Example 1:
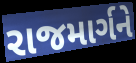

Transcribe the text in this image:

રાજમાર્ગને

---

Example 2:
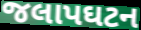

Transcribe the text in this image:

જલાપઘટન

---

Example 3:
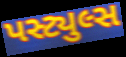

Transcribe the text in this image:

પસ્ટ્યુલ્સ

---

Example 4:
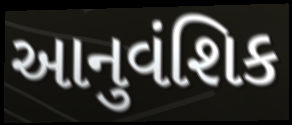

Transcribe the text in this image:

આનુવંશિક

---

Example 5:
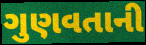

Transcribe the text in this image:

ગુણવતાની